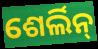
ଶେର୍ଲିନ୍